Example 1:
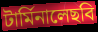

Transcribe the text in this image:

টার্মিনালেছবি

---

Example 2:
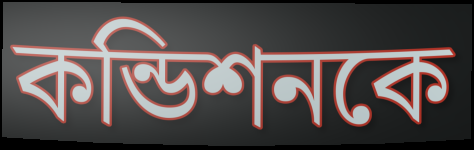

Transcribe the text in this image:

কন্ডিশনকে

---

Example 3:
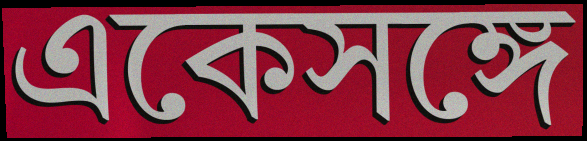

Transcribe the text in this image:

একেসঙ্গে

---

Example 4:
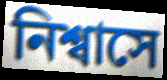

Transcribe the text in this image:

নিশ্বাসে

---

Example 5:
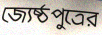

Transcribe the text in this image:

জ্যেষ্ঠপুত্রের